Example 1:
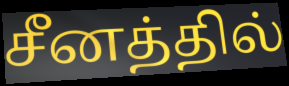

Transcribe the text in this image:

சீனத்தில்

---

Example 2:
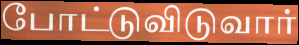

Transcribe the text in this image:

போட்டுவிடுவார்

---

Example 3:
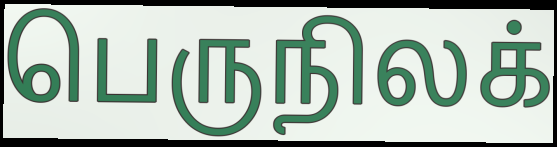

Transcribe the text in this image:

பெருநிலக்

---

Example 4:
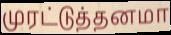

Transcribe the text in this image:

முரட்டுத்தனமா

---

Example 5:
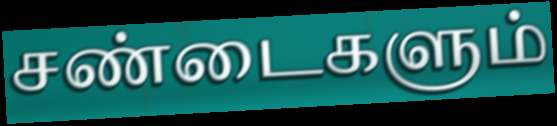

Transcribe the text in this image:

சண்டைகளும்